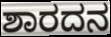
ಶಾರದನ